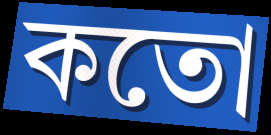
কতো